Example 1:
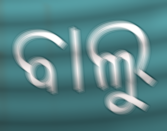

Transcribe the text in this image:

ବାଲୁ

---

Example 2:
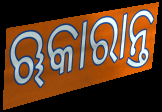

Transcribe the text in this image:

ୠକାରାନ୍ତ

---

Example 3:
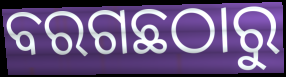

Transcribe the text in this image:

ବରଗଛଠାରୁ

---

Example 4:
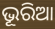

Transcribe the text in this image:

ଭୂରିଆ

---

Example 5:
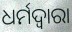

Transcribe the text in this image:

ଧର୍ମଦ୍ୱାରା